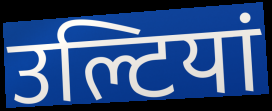
उल्टियां